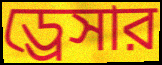
ড্রেসার